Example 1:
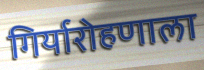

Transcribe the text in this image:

गिर्यारोहणाला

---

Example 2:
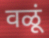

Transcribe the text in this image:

वळूं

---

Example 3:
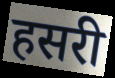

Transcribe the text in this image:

हसरी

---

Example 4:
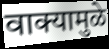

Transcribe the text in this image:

वाक्यामुळे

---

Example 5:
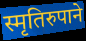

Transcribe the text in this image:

स्मृतिरुपाने